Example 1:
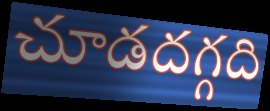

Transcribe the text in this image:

చూడదగ్గది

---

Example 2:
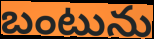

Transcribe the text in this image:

బంటును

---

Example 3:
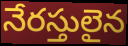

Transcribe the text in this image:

నేరస్తులైన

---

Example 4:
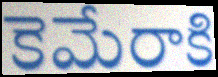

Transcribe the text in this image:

కెమేరాకి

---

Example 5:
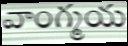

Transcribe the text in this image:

వాంగ్మయ